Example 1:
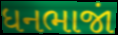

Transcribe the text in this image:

ધનભાજાં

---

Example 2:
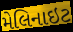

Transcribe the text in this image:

મેલિનાઇટ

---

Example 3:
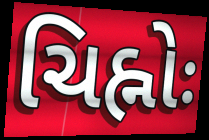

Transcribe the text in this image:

ચિહ્નોઃ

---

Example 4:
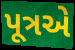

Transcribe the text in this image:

પૂત્રએ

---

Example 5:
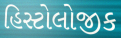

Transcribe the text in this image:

હિસ્ટોલોજીક